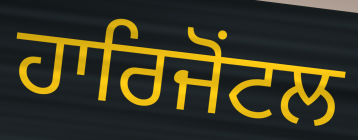
ਹਾਰਿਜੋਂਟਲ